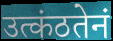
उत्कंठतेनं